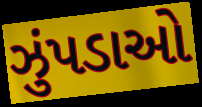
ઝુંપડાઓ